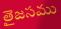
తైజసము